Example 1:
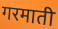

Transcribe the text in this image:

गरमाती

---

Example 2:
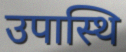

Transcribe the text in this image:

उपास्थि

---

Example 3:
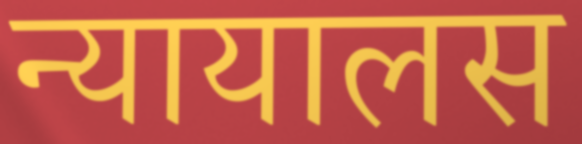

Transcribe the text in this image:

न्यायालस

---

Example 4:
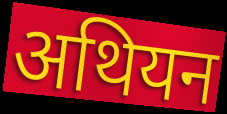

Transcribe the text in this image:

अथियन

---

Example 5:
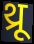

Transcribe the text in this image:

थ्रू